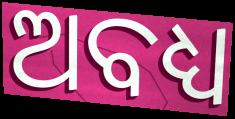
ଅବଧ୍ୟ